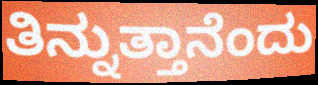
ತಿನ್ನುತ್ತಾನೆಂದು